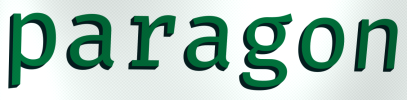
paragon